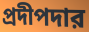
প্রদীপদার